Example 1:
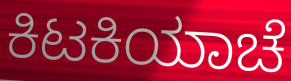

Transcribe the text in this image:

ಕಿಟಕಿಯಾಚೆ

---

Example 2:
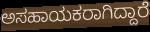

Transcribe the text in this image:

ಅಸಹಾಯಕರಾಗಿದ್ದಾರೆ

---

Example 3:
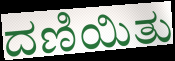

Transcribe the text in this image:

ದಣಿಯಿತು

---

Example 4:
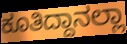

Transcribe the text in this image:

ಕೂತಿದ್ದಾನಲ್ಲಾ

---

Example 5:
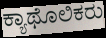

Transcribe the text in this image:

ಕ್ಯಾಥೊಲಿಕರು